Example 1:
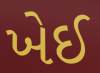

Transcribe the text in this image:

ખેઈ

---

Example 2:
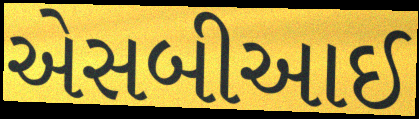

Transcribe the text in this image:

એસબીઆઈ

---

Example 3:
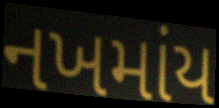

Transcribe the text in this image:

નખમાંય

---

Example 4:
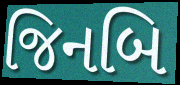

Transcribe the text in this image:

જિનબિ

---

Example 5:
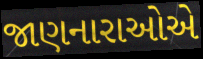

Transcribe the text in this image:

જાણનારાઓએ